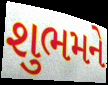
શુભમને